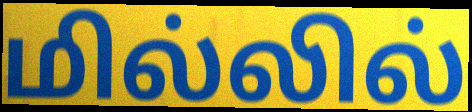
மில்லில்